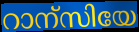
റാന്സിയേ